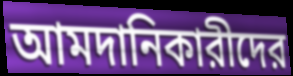
আমদানিকারীদের